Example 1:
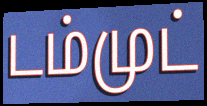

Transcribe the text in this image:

டம்முட்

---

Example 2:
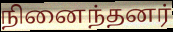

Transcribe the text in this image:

நினைந்தனர்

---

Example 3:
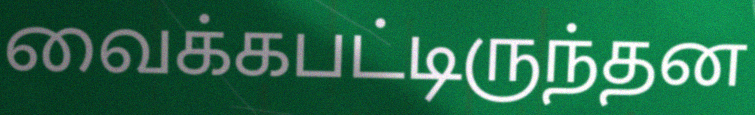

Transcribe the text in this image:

வைக்கபட்டிருந்தன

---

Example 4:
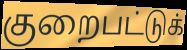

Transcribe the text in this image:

குறைபட்டுக்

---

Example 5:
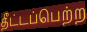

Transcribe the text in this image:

தீட்டப்பெற்ற